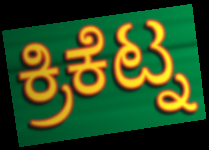
ಕ್ರಿಕೆಟ್ನ